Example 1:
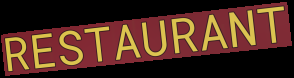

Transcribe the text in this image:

RESTAURANT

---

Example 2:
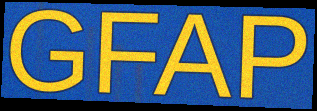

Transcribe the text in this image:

GFAP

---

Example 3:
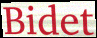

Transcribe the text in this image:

Bidet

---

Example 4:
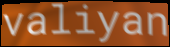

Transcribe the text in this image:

valiyan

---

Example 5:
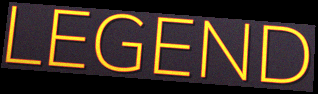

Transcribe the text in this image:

LEGEND